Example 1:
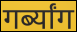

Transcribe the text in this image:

गर्ब्यांग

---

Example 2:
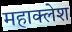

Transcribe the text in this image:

महाक्लेश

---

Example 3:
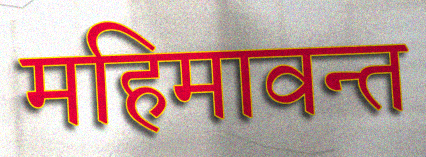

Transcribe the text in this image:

महिमावन्त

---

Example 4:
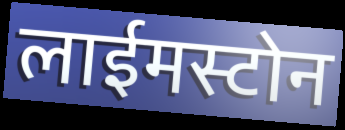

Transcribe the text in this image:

लाईमस्टोन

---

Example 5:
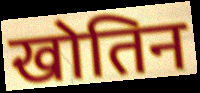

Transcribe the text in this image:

खोतिन